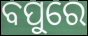
ବପୁରେ